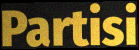
Partisi